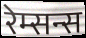
रेम्सन्स